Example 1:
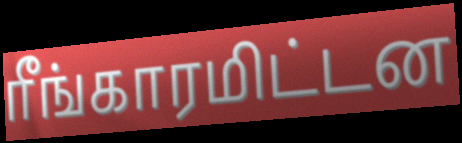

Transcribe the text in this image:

ரீங்காரமிட்டன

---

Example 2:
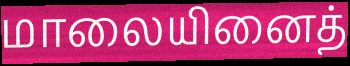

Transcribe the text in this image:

மாலையினைத்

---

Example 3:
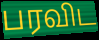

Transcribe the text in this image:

பரவிட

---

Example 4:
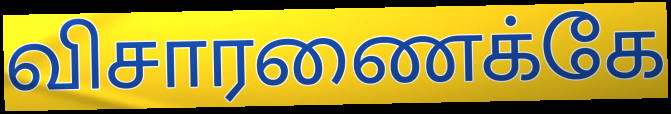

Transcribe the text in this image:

விசாரணைக்கே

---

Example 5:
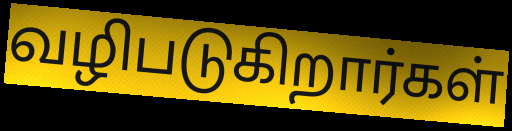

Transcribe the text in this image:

வழிபடுகிறார்கள்